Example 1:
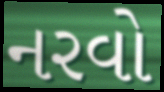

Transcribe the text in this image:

નરવો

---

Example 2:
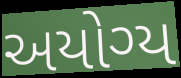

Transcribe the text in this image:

અયોગ્ય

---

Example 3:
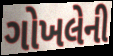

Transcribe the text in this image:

ગોખલેની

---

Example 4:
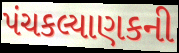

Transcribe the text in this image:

પંચકલ્યાણકની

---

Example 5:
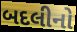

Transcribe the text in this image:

બદલીનો